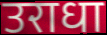
उराधा